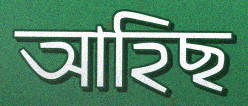
আহিছ